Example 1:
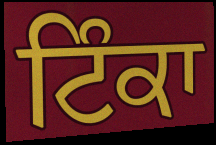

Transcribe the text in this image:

ਟਿੰਕਾ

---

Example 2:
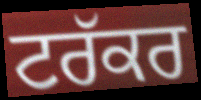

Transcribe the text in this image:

ਟਰੱਕਰ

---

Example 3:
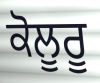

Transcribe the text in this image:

ਕੋਲੂਰੂ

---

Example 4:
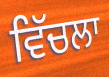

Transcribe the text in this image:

ਵਿੱਚਲਾ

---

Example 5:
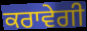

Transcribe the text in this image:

ਕਰਾਵੇਗੀ